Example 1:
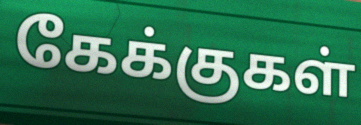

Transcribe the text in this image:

கேக்குகள்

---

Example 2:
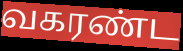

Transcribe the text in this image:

வகரண்ட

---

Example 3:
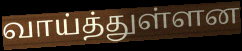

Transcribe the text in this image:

வாய்த்துள்ளன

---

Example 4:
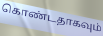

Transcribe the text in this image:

கொண்டதாகவும்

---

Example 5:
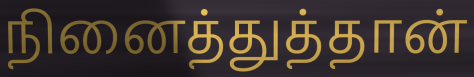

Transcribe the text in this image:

நினைத்துத்தான்